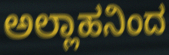
ಅಲ್ಲಾಹನಿಂದ